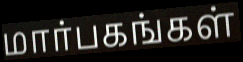
மார்பகங்கள்